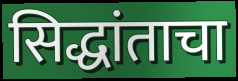
सिद्धांताचा